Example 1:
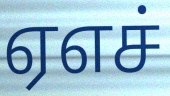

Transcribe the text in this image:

ஏஎச்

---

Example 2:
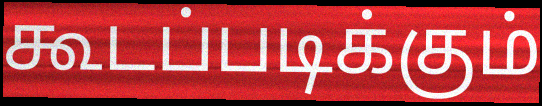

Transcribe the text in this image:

கூடப்படிக்கும்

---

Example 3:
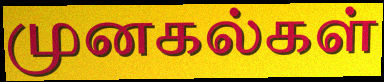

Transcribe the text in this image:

முனகல்கள்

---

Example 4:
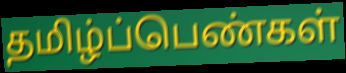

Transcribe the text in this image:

தமிழ்ப்பெண்கள்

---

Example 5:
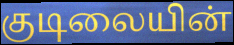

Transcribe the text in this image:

குடிலையின்